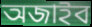
অজাইব